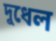
দুধেল